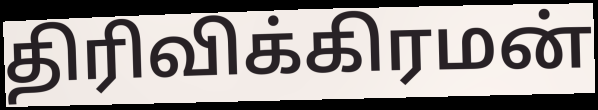
திரிவிக்கிரமன்